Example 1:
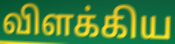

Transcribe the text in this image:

விளக்கிய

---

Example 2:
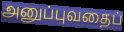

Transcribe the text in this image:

அனுப்புவதைப்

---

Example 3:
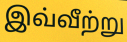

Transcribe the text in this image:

இவ்வீற்று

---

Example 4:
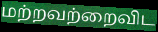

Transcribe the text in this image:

மற்றவற்றைவிட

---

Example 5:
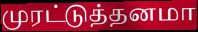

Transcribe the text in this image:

முரட்டுத்தனமா